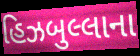
હિઝબુલ્લાના